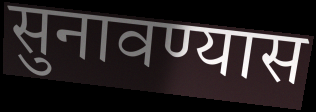
सुनावण्यास